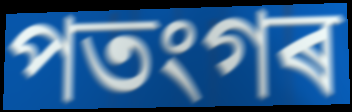
পতংগৰ